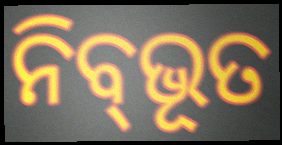
ନିବ୍‌ଭୂତ